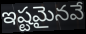
ఇష్టమైనవే